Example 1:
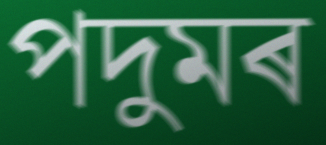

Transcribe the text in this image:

পদুমৰ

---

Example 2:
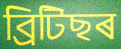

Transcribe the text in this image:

ব্ৰিটিছৰ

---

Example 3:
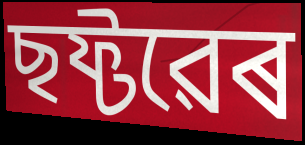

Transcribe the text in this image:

ছফ্টৱেৰ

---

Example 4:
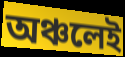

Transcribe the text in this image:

অঞ্চলেই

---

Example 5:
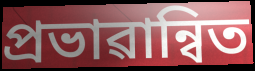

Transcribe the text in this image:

প্ৰভাৱান্বিত